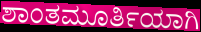
ಶಾಂತಮೂರ್ತಿಯಾಗಿ